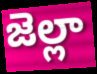
జెల్లా